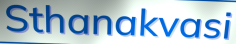
Sthanakvasi